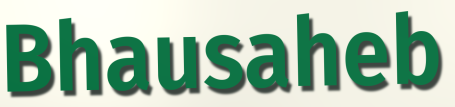
Bhausaheb